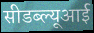
सीडब्ल्यूआई